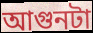
আগুনটা